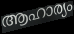
ആഹാര്യം